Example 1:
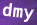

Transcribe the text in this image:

dmy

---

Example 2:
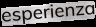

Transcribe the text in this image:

esperienza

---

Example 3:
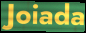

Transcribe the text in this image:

Joiada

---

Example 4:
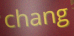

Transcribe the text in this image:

chang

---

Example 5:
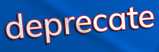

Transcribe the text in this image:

deprecate